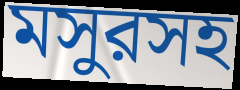
মসুরসহ